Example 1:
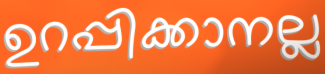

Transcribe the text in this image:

ഉറപ്പിക്കാനല്ല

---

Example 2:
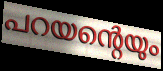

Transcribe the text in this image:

പറയന്റെയും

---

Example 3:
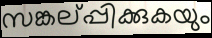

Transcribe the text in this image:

സങ്കല്പ്പിക്കുകയും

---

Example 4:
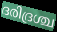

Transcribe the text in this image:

ദരിദ്രശ്ച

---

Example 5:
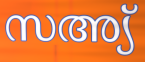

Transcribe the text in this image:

സഅ്യ്